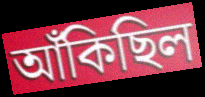
আঁকিছিল